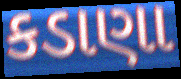
કડાણા